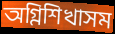
অগ্নিশিখাসম